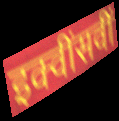
इक्वींसवीं